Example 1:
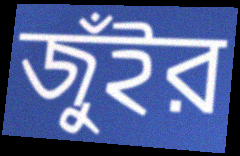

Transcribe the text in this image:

জুঁইর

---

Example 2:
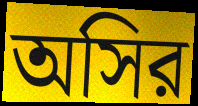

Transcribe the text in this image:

অসির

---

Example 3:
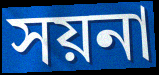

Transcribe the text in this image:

সয়না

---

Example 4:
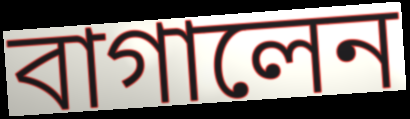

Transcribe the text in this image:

বাগালেন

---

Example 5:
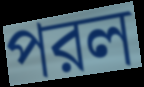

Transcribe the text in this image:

পরল